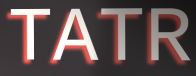
TATR